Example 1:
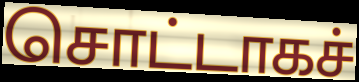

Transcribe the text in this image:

சொட்டாகச்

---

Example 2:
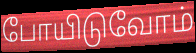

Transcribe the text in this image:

போயிடுவோம்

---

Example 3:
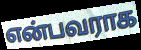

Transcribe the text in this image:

என்பவராக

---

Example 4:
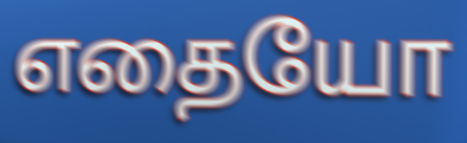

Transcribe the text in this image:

எதையோ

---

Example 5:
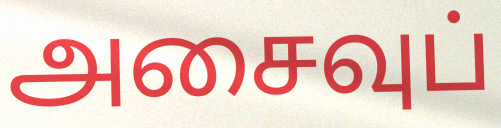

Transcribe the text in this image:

அசைவுப்